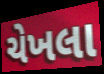
ચેખલા